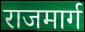
राजमार्ग